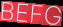
BEFG